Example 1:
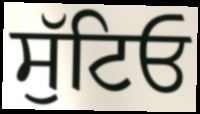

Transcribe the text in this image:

ਸੁੱਟਿਓ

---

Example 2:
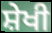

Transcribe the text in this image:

ਸ਼ੇਖੀ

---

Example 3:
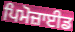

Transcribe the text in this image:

ਪਿਮੋਜ਼ਾਈਡ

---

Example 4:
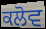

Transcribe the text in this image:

ਕਲੋਵ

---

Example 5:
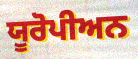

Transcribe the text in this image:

ਯੂਰੋਪੀਅਨ